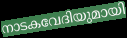
നാടകവേദിയുമായി